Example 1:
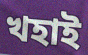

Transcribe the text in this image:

খহাই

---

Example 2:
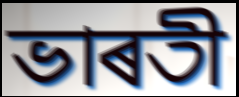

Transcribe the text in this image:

ভাৰতী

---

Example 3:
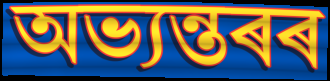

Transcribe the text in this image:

অভ্যন্তৰৰ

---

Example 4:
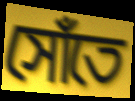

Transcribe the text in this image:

সোঁতে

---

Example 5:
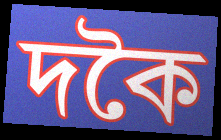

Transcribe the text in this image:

দকৈ